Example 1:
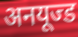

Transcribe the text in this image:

अनयूज्ड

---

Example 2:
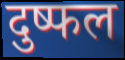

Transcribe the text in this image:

दुष्फल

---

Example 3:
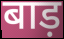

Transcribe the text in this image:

बाड़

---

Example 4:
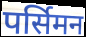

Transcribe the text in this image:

पर्सिमन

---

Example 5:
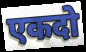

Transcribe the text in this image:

एकदो